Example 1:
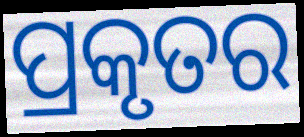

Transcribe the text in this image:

ପ୍ରକୃତର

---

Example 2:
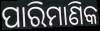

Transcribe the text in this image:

ପାରିମାଣିକ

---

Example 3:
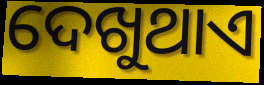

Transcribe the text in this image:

ଦେଖୁଥାଏ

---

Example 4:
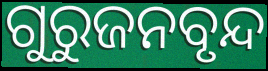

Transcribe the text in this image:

ଗୁରୁଜନବୃନ୍ଦ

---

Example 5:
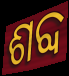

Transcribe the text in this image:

ଶବ୍ଦ